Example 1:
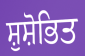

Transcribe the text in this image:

ਸ਼ੁਸ਼ੋਭਿਤ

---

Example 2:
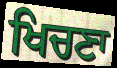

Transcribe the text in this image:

ਖਿਚਣਾ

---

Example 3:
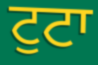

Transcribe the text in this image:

ਟੁਟਾ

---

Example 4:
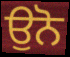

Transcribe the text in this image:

ਉਨੋ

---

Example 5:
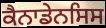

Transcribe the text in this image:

ਕੈਨਾਡੇਨਸਿਸ